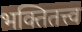
भक्तितत्त्व